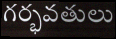
గర్భవతులు